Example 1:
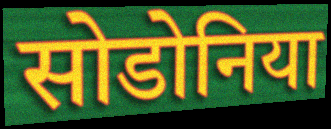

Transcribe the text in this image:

सोडोनिया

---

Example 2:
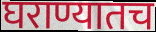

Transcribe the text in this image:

घराण्यातच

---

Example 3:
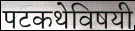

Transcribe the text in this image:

पटकथेविषयी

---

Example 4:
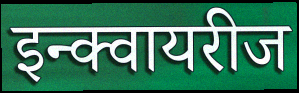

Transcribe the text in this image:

इन्क्वायरीज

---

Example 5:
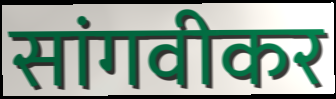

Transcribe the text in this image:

सांगवीकर